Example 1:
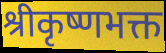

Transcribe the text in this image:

श्रीकृष्णभक्त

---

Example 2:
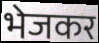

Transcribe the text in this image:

भेजकर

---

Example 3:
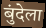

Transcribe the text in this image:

बुंदेला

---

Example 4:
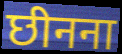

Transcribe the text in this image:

छीनना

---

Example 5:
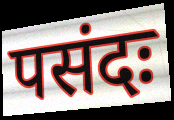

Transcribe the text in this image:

पसंदः